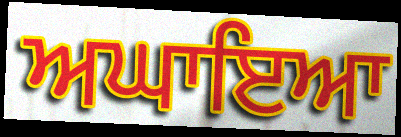
ਅਘਾਇਆ